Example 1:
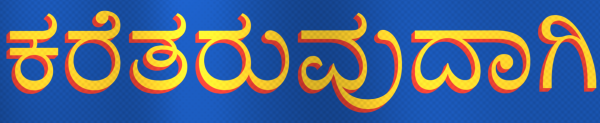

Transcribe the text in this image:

ಕರೆತರುವುದಾಗಿ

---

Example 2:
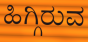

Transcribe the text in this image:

ಹಿಗ್ಗಿರುವ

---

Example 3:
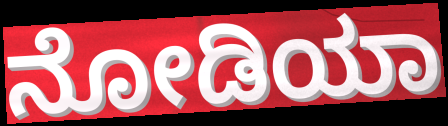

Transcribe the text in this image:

ನೋಡಿಯಾ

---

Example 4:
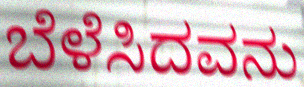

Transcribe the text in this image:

ಬೆಳೆಸಿದವನು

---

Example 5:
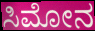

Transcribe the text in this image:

ಸಿಮೋನ